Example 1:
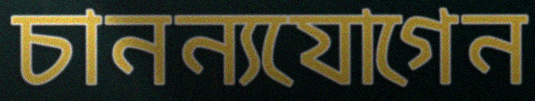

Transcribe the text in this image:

চানন্যযোগেন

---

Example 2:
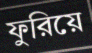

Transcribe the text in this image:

ফুরিয়ে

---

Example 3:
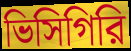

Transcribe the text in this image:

ভিসিগিরি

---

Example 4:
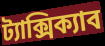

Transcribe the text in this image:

ট্যাক্সিক্যাব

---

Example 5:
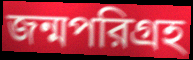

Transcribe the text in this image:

জন্মপরিগ্রহ